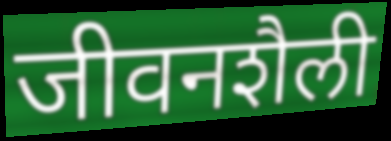
जीवनशैली